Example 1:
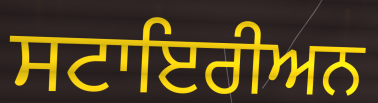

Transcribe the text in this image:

ਸਟਾਇਰੀਅਨ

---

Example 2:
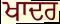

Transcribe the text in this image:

ਖਾਦਰ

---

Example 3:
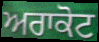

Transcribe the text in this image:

ਅਰਾਕੋਟ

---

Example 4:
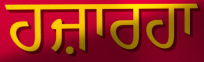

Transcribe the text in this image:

ਹਜ਼ਾਰਹਾ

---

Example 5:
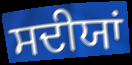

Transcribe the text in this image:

ਸਦੀਯਾਂ